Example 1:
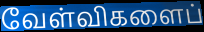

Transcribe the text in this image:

வேள்விகளைப்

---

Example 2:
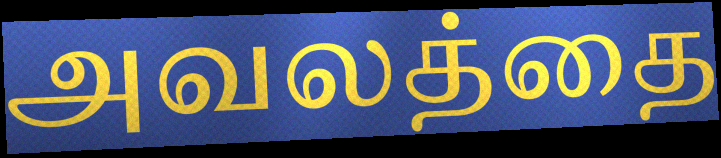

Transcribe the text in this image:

அவலத்தை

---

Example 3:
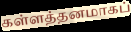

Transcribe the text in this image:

கள்ளத்தனமாகப்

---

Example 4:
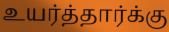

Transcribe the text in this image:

உயர்த்தார்க்கு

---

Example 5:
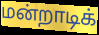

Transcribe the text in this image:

மன்றாடிக்